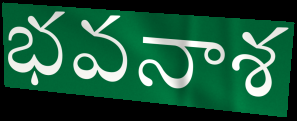
భవనాశ